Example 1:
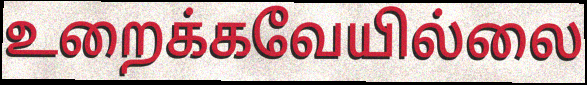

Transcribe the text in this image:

உறைக்கவேயில்லை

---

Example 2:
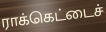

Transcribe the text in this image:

ராக்கெட்டைச்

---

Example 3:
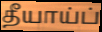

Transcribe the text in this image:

தீயாய்ப்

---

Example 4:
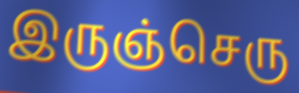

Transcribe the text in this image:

இருஞ்செரு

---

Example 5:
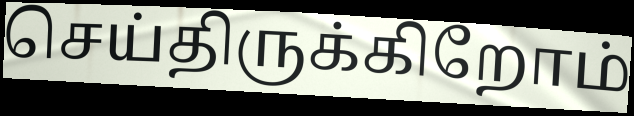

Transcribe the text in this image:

செய்திருக்கிறோம்